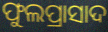
ଫୁଲପ୍ରାସାଦ